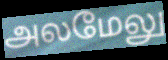
அலமேலு